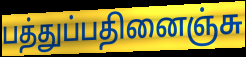
பத்துப்பதினைஞ்சு